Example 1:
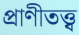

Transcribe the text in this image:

প্রাণীতত্ত্ব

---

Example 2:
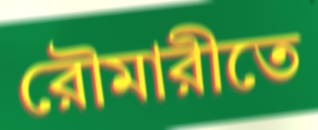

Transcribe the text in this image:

রৌমারীতে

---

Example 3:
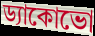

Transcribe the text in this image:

ড্যাকোভো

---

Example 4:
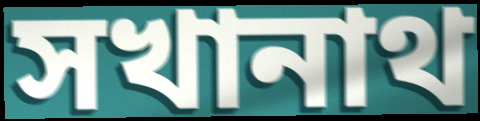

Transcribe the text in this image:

সখানাথ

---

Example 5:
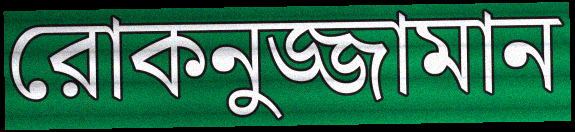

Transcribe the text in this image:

রোকনুজ্জামান